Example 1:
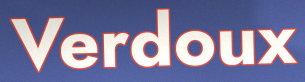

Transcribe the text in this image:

Verdoux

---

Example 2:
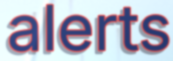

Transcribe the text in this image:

alerts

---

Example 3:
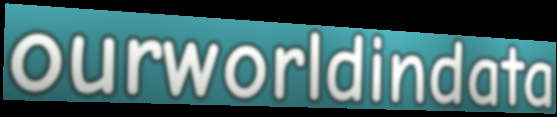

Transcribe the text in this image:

ourworldindata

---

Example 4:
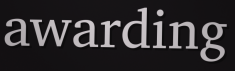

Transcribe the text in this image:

awarding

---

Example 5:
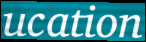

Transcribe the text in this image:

ucation